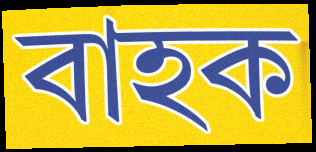
বাহক